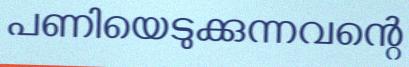
പണിയെടുക്കുന്നവന്റെ